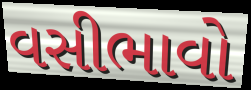
વસીભાવો